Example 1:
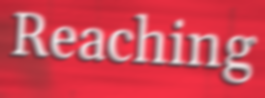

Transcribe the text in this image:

Reaching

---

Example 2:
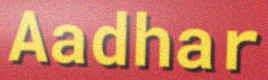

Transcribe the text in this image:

Aadhar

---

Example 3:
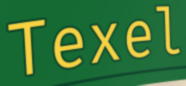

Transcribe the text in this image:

Texel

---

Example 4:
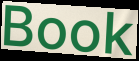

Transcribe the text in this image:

Book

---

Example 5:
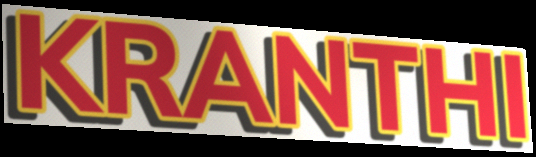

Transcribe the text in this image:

KRANTHI